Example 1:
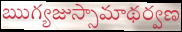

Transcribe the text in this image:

ఋగ్యజుస్సామాథర్వణ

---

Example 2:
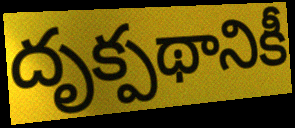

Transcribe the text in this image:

దృక్పథానికీ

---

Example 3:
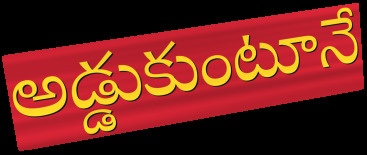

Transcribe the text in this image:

అడ్డుకుంటూనే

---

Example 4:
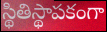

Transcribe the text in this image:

స్థితిస్థాపకంగా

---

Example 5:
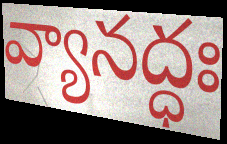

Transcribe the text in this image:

వ్యానద్ధః